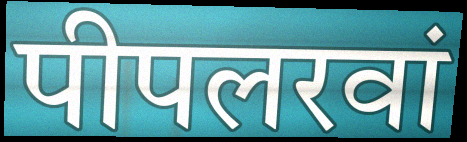
पीपलरवां